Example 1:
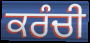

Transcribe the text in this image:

ਕਰੰਚੀ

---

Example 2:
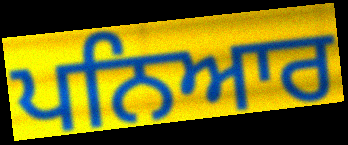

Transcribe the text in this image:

ਪਨਿਆਰ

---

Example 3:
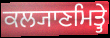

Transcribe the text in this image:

ਕਲ੍ਯਾਣਮਿਤ੍ਤੇ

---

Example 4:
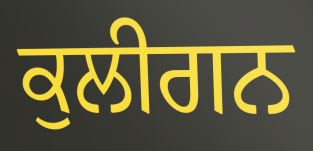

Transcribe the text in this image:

ਕੁਲੀਗਨ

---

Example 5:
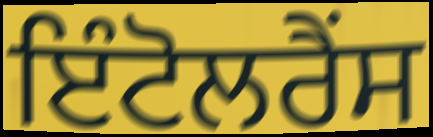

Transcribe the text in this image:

ਇੰਟੋਲਰੈਂਸ